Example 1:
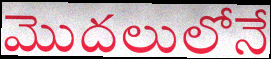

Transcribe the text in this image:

మొదలులోనే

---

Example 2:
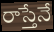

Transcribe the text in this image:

రాస్తేనే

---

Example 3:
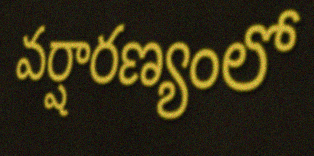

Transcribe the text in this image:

వర్షారణ్యంలో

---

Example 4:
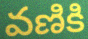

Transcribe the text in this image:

వణికి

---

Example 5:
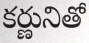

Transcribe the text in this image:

కర్ణునితో